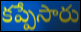
కప్పేసారు